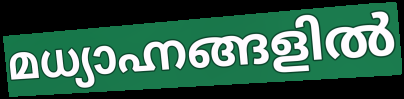
മധ്യാഹ്നങ്ങളിൽ